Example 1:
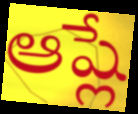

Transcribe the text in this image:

ఆష్లే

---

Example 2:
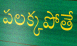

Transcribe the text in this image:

పలక్కపోతే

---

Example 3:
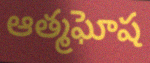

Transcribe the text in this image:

ఆత్మఘోష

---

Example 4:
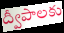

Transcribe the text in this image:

ద్వీపాలకు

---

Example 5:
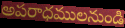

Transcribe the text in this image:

అపరాధములనుండి